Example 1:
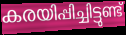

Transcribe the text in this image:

കരയിപ്പിച്ചിട്ടുണ്ട്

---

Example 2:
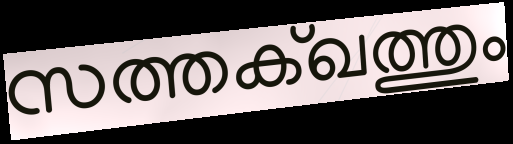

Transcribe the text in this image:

സത്തക്ഖത്തും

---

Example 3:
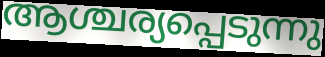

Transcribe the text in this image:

ആശ്ചര്യപ്പെടുന്നു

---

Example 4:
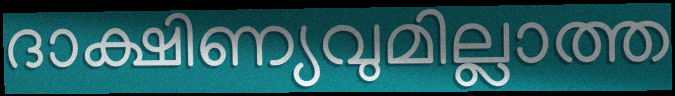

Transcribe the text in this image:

ദാക്ഷിണ്യവുമില്ലാത്ത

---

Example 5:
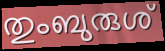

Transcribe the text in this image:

തുംബുരുശ്